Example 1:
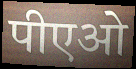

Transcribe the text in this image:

पीएओ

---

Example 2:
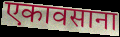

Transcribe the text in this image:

एकावसाना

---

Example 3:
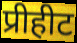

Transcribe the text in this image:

प्रीहीट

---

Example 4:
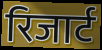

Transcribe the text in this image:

रिजार्ट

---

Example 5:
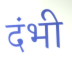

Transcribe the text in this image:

दंभी